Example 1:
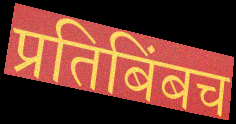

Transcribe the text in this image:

प्रतिबिंबच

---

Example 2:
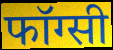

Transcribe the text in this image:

फॉग्सी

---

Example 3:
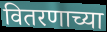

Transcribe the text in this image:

वितरणाच्या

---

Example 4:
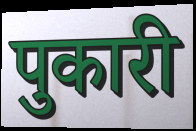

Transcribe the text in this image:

पुकारी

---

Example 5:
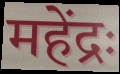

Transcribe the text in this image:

महेंद्रः